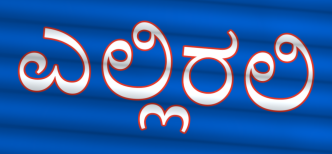
ಎಲ್ಲಿರಲಿ